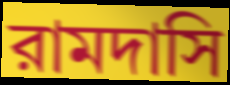
রামদাসি